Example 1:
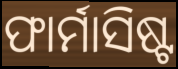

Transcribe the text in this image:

ଫାର୍ମାସିଷ୍ଟ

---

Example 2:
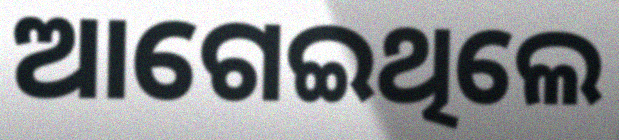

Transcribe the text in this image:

ଆଗେଇଥିଲେ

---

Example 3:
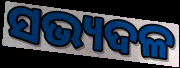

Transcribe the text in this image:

ସଭ୍ୟଦଳ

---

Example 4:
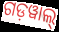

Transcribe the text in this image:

ଗଡ଼ୱାଲ୍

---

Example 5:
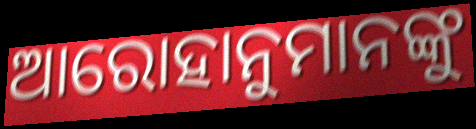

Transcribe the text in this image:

ଆରୋହାନୁମାନଙ୍କୁ